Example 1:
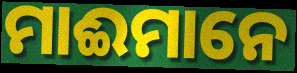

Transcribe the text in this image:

ମାଈମାନେ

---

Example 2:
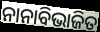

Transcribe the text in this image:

ନାନାବିଭାଜିତ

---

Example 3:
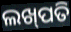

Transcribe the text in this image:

ଲଖ୍‌ପତି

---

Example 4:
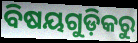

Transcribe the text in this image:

ବିଷୟଗୁଡ଼ିକରୁ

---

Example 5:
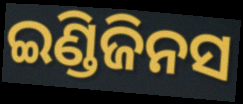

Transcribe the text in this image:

ଇଣ୍ଡିଜିନସ